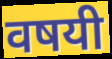
वषयी